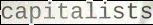
capitalists